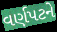
વર્ણપટને